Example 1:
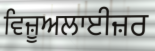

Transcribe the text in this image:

ਵਿਜ਼ੂਅਲਾਈਜ਼ਰ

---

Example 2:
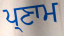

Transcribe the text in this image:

ਪ੍ਣਾਮ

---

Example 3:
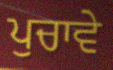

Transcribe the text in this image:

ਪੁਚਾਵੇ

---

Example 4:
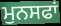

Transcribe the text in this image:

ਮੁਨਸਫਾਂ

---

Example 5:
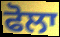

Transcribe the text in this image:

ਫੋਲਾ